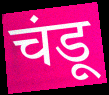
चंडू